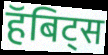
हॅबिट्स